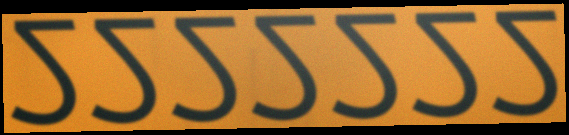
ऽऽऽऽऽऽऽ